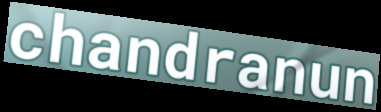
chandranun